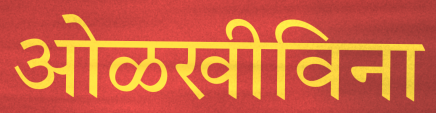
ओळखीविना